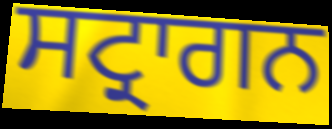
ਸਟ੍ਰਾਗਨ